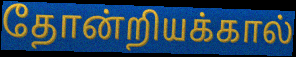
தோன்றியக்கால்